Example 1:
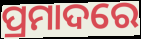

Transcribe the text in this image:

ପ୍ରମାଦରେ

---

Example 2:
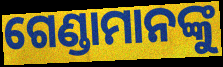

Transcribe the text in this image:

ଗେଣ୍ଡାମାନଙ୍କୁ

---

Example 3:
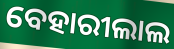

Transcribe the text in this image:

ବେହାରୀଲାଲ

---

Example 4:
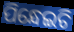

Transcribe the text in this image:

ପିନ୍ଧେଇଚି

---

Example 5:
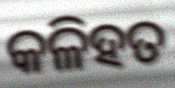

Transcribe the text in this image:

କଳିହତ